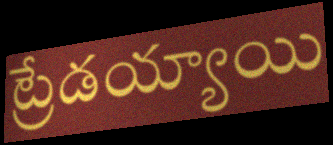
ట్రేడయ్యాయి